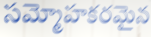
సమ్మోహకరమైన